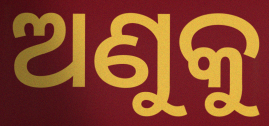
ଅଣୁକୁ